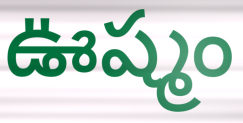
ఊష్మం